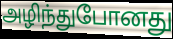
அழிந்துபோனது